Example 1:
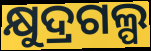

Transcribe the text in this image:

କ୍ଷୁଦ୍ରଗଲ୍ପ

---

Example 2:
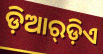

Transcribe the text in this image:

ଡ଼ିଆର୍‌ଡ଼ିଏ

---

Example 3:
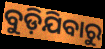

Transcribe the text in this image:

ବୁଡ଼ିଯିବାରୁ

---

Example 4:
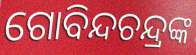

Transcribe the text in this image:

ଗୋବିନ୍ଦଚନ୍ଦ୍ରଙ୍କ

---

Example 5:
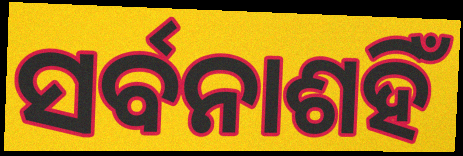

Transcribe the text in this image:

ସର୍ବନାଶହିଁ